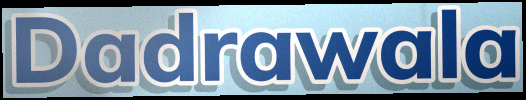
Dadrawala